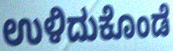
ಉಳಿದುಕೊಂಡೆ